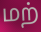
மற்